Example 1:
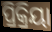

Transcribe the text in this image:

ପ୍ରିକ୍ରିୟା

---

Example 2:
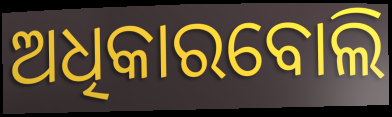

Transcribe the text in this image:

ଅଧିକାରବୋଲି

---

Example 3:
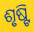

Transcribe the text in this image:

ଶୃଷ୍ଟି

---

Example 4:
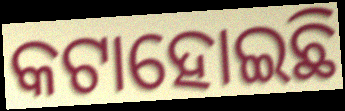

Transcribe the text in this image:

କଟାହୋଇଛି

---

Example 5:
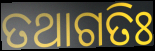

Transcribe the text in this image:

ତଥାଗତିଃ